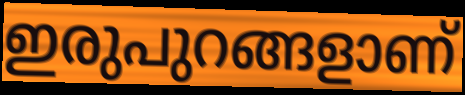
ഇരുപുറങ്ങളാണ്